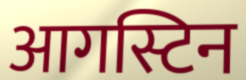
आगस्टिन